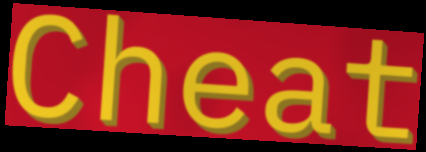
Cheat